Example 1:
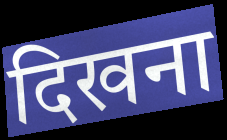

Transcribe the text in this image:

दिखना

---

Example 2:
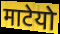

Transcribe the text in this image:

माटेयो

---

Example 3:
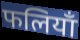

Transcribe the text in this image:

फलियाँ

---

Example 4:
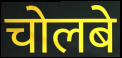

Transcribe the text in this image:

चोलबे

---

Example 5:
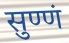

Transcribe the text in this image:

सुण्णं